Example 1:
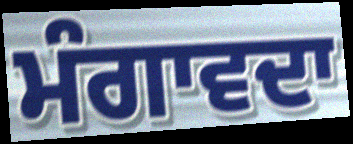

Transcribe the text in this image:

ਮੰਗਾਵਦਾ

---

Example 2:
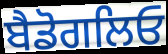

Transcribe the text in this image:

ਬੈਡੋਗਲਿਓ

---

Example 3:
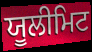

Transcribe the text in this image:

ਯੂਲੀਮਿਟ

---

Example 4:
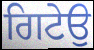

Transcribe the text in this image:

ਗਿਟੇਉ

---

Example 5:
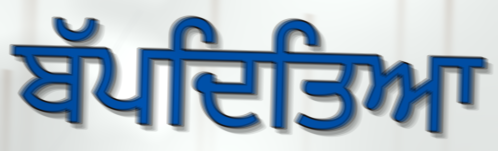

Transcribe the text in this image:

ਬੱਪਦਿਤਿਆ